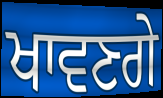
ਖਾਵਣਗੇ